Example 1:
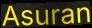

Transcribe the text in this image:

Asuran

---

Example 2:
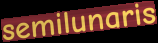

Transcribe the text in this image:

semilunaris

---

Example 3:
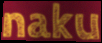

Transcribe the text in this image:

naku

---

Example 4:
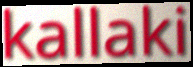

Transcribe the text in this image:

kallaki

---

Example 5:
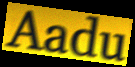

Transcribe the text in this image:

Aadu